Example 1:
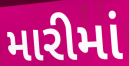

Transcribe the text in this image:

મારીમાં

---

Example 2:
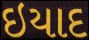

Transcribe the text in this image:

ઇયાદ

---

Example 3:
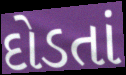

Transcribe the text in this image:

દોડતાં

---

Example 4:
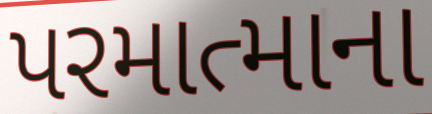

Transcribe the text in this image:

પરમાત્માના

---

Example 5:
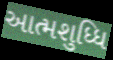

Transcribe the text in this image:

આત્મશુધ્ધિ